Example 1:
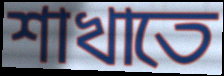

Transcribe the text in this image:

শাখাতে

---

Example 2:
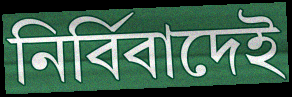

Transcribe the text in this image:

নির্বিবাদেই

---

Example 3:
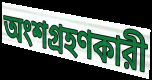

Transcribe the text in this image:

অংশগ্রহণকারী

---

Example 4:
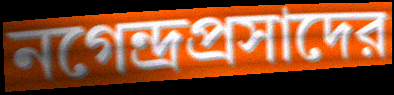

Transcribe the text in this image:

নগেন্দ্রপ্রসাদের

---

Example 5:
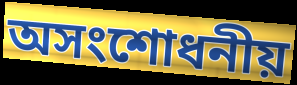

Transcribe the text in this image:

অসংশোধনীয়